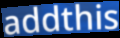
addthis